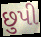
છુપી